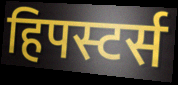
हिपस्टर्स